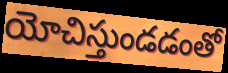
యోచిస్తుండడంతో